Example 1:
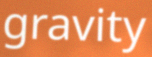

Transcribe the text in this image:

gravity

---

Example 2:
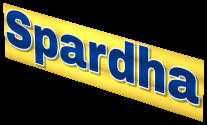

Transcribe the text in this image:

Spardha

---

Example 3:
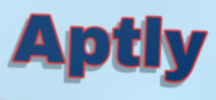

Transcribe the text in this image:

Aptly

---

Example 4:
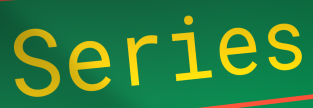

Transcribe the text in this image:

Series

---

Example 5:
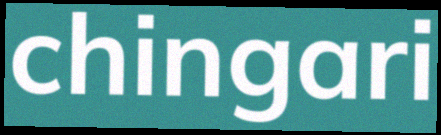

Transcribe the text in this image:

chingari